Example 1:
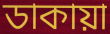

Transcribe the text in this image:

ডাকায়া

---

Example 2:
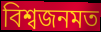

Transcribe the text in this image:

বিশ্বজনমত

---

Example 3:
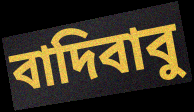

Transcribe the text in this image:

বাদিবাবু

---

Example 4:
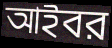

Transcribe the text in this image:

আইবর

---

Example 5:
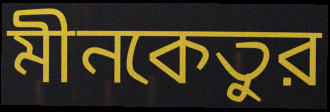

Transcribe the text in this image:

মীনকেতুর